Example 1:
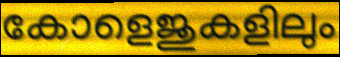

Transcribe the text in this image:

കോളെജുകളിലും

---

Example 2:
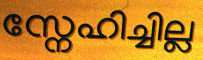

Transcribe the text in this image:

സ്നേഹിച്ചില്ല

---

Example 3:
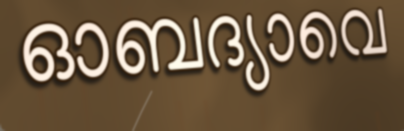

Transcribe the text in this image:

ഓബദ്യാവെ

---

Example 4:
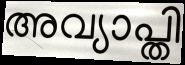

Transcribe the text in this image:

അവ്യാപ്തി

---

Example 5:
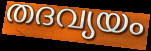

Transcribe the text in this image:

തദവ്യയം